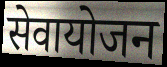
सेवायोजन